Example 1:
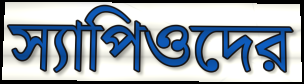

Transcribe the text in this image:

স্যাপিওদের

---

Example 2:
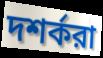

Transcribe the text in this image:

দশর্করা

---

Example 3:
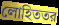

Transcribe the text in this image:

লোহিততর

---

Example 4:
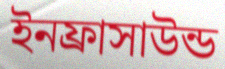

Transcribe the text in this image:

ইনফ্রাসাউন্ড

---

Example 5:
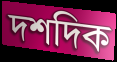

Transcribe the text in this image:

দশদিক